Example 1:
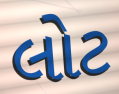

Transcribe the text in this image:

લોટ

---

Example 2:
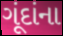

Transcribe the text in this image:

ગૂંદાંના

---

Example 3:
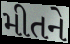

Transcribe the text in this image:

મીતને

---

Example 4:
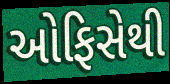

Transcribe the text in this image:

ઓફિસેથી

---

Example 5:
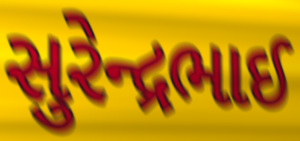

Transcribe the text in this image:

સુરેન્દ્રભાઈ